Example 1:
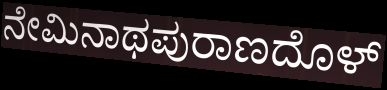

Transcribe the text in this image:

ನೇಮಿನಾಥಪುರಾಣದೊಳ್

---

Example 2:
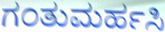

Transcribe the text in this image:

ಗಂತುಮರ್ಹಸಿ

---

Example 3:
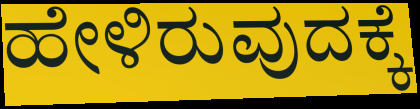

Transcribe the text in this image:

ಹೇಳಿರುವುದಕ್ಕೆ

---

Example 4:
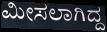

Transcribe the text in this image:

ಮೀಸಲಾಗಿದ್ದ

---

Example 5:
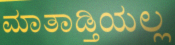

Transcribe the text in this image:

ಮಾತಾಡ್ತಿಯಲ್ಲ